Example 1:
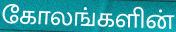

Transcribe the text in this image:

கோலங்களின்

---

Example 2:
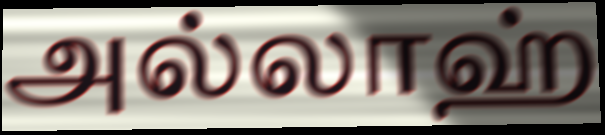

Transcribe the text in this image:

அல்லாஹ்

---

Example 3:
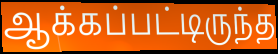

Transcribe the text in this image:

ஆக்கப்பட்டிருந்த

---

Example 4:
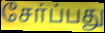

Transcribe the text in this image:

சேர்ப்பது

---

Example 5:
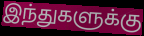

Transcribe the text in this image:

இந்துகளுக்கு